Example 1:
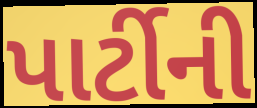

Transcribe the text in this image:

પાર્ટીની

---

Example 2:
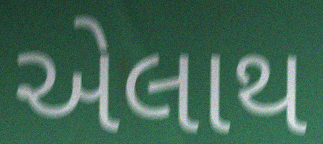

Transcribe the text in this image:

એલાથ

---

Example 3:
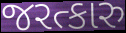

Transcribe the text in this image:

જરત્કારુ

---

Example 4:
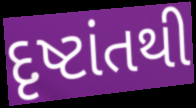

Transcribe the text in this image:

દૃષ્ટાંતથી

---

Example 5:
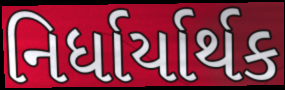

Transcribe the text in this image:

નિર્ધાર્યાર્થક